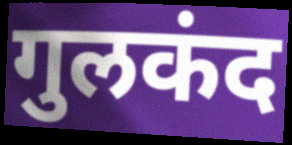
गुलकंद